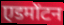
एडमोंटन